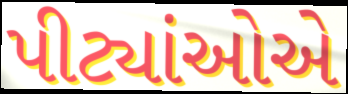
પીટ્યાંઓએ